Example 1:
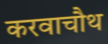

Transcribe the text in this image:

करवाचौथ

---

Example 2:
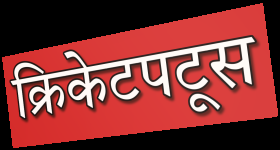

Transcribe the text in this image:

क्रिकेटपटूस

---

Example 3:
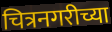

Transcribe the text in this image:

चित्रनगरीच्या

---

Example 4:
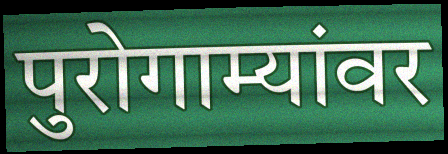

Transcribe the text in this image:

पुरोगाम्यांवर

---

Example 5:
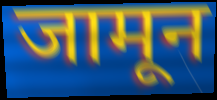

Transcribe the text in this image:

जामून